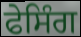
ਫੇਸਿੰਗ